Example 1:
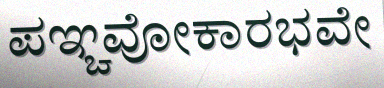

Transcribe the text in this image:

ಪಞ್ಚವೋಕಾರಭವೇ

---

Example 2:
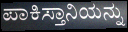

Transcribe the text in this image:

ಪಾಕಿಸ್ತಾನಿಯನ್ನು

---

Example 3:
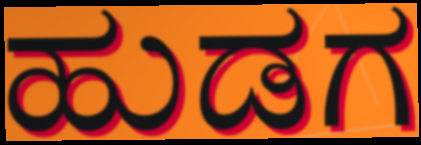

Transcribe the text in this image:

ಹುಡಗ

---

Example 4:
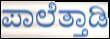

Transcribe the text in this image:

ಪಾಲೆತ್ತಾಡಿ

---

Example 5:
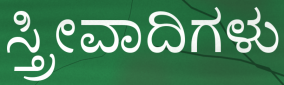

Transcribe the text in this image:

ಸ್ತ್ರೀವಾದಿಗಳು